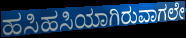
ಹಸಿಹಸಿಯಾಗಿರುವಾಗಲೇ